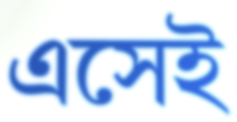
এসেই